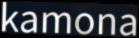
kamona